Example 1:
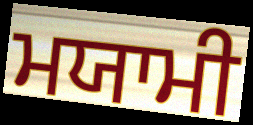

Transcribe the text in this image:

ਮਯਾਮੀ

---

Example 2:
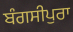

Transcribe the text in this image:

ਬੰਗਸੀਪੁਰਾ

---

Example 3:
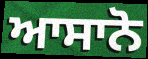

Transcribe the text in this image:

ਆਸਾਨੋ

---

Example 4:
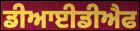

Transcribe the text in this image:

ਡੀਆਈਡੀਐਫ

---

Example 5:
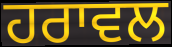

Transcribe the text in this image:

ਹਰਾਵਲ